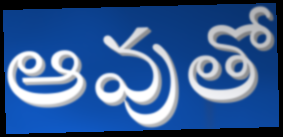
ఆవుతో